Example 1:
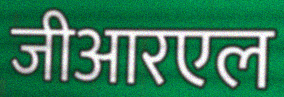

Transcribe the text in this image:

जीआरएल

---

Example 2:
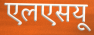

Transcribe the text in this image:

एलएसयू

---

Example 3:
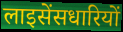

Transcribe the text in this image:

लाइसेंसधारियों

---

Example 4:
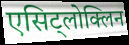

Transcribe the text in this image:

एसिट्लोक्लिन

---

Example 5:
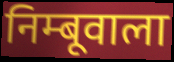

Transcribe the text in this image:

निम्बूवाला